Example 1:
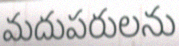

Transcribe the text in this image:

మదుపరులను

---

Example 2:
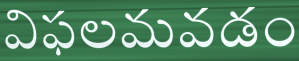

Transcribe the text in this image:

విఫలమవడం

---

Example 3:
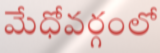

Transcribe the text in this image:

మేధోవర్గంలో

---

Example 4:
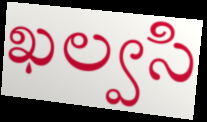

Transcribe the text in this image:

ఖల్వసి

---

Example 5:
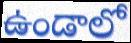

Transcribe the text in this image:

ఉండాలో